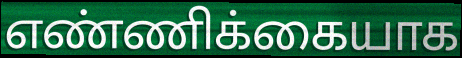
எண்ணிக்கையாக